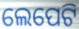
ଲେପେଟି